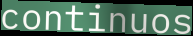
continuos